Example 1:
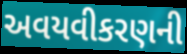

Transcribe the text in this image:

અવયવીકરણની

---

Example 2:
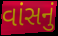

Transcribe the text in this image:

વાંસનું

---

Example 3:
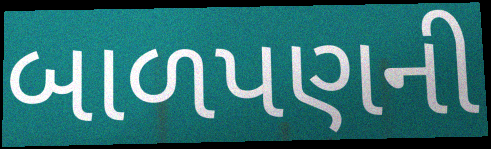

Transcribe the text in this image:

બાળપણની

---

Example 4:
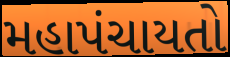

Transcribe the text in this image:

મહાપંચાયતો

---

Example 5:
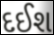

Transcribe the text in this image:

દઈશ